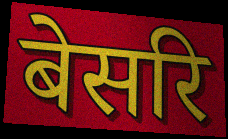
बेसरि